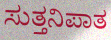
ಸುತ್ತನಿಪಾತ